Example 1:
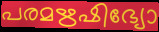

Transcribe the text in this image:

പരമഋഷിഭ്യോ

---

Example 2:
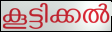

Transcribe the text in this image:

കൂട്ടിക്കൽ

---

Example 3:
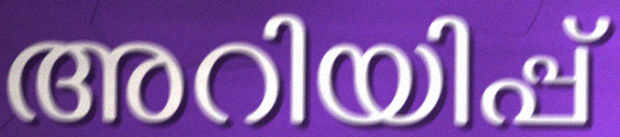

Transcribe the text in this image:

അറിയിപ്പ്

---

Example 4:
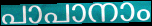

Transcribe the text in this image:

പാപാനാം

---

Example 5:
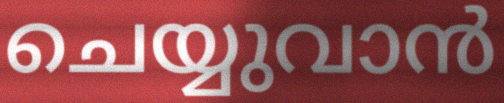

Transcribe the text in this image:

ചെയ്യുവാൻ